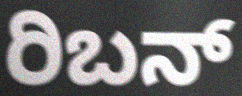
ರಿಬನ್